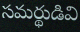
సమర్థుడివి